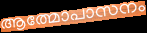
ആത്മോപാസനം